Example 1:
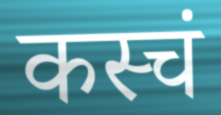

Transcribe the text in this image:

कस्चं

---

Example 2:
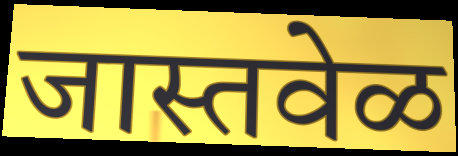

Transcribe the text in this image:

जास्तवेळ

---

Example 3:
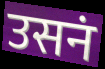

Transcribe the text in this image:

उसनं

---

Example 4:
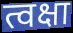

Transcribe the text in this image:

त्वक्षा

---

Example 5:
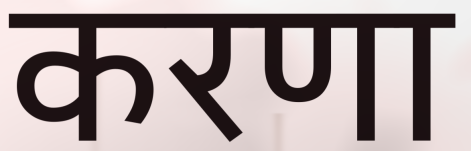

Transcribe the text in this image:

करणा